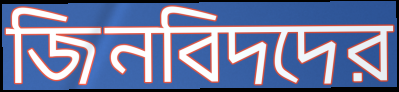
জিনবিদদের